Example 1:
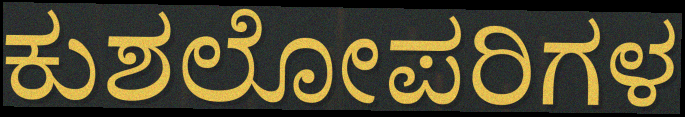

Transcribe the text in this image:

ಕುಶಲೋಪರಿಗಳ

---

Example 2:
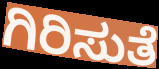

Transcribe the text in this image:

ಗಿರಿಸುತೆ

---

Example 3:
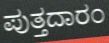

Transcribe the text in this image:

ಪುತ್ತದಾರಂ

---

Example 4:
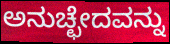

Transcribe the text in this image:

ಅನುಚ್ಛೇದವನ್ನು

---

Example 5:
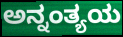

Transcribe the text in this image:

ಅನ್ನಂತ್ಯಯ